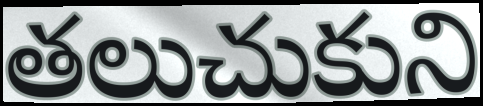
తలుచుకుని